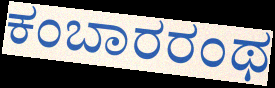
ಕಂಬಾರರಂಥ